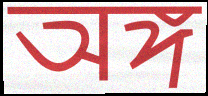
অঙ্গ